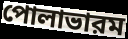
পোলাভারম